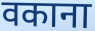
वकाना